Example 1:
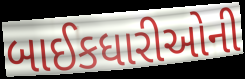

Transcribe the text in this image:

બાઈકધારીઓની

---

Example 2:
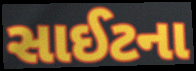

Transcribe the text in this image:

સાઈટના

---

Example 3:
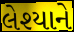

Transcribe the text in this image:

લેશ્યાને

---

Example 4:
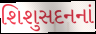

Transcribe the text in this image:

શિશુસદનનાં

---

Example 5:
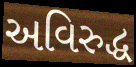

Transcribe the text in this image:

અવિરુદ્ધ